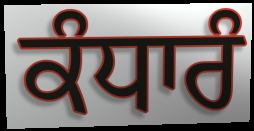
ਕੰਧਾਰੰ